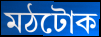
মঠটোক